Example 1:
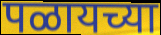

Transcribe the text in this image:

पळायच्या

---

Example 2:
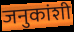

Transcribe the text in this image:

जनुकांशी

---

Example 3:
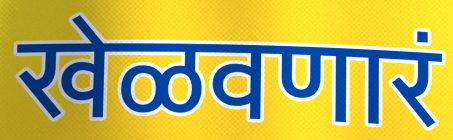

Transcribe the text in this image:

खेळवणारं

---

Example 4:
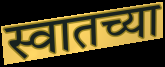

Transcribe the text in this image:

स्वातच्या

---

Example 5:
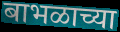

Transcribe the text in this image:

बाभळाच्या